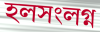
হলসংলগ্ন